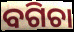
ବଗିଚା